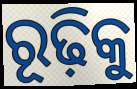
ରୂଢ଼ିକୁ